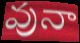
వునా